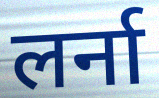
लर्ना